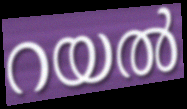
റയൽ